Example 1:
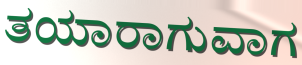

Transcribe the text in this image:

ತಯಾರಾಗುವಾಗ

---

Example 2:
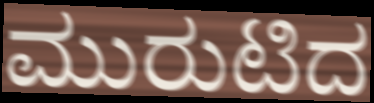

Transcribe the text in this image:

ಮುರುಟಿದ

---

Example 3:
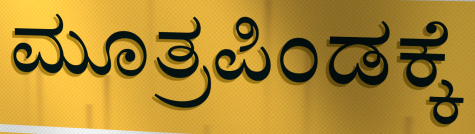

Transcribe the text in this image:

ಮೂತ್ರಪಿಂಡಕ್ಕೆ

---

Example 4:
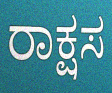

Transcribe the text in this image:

ರಾಕ್ಷಸ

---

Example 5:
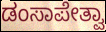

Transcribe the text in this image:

ಡಂಸಾಪೇತ್ವಾ